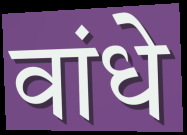
वांधे